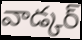
వాడ్కర్